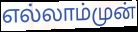
எல்லாம்முன்